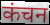
कंचन